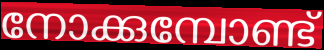
നോക്കുമ്പോണ്ട്